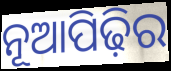
ନୂଆପିଢ଼ିର